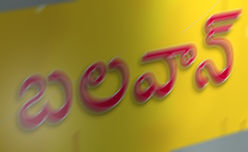
బలవాన్